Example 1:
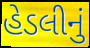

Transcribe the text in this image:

હેડલીનું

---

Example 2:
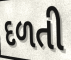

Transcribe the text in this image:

દળતી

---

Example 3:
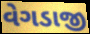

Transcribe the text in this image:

વેગડાજી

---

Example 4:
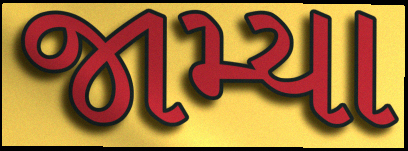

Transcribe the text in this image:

જામ્યા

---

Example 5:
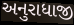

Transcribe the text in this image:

અનુરાધાજી